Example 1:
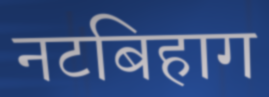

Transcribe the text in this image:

नटबिहाग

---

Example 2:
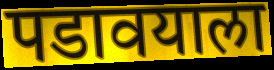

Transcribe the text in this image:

पडावयाला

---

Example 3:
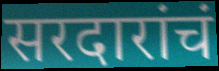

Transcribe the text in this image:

सरदारांचं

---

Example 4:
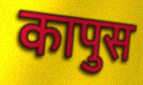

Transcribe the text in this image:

कापुस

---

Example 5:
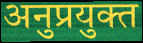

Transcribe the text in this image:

अनुप्रयुक्त